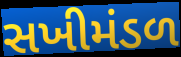
સખીમંડળ